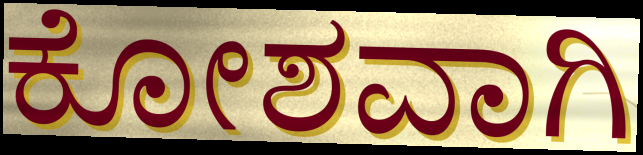
ಕೋಶವಾಗಿ